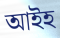
আইহ